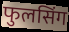
फुलसिंग